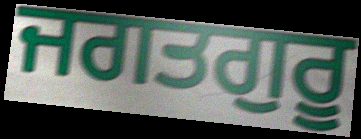
ਜਗਤਗੁਰੂ